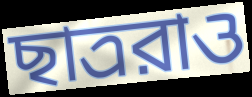
ছাত্ররাও